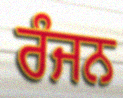
ਰੰਜਨ